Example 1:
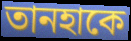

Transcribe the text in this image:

তানহাকে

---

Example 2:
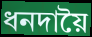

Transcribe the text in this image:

ধনদায়ৈ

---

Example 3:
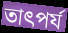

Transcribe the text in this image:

তাৎপর্য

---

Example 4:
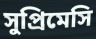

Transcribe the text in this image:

সুপ্রিমেসি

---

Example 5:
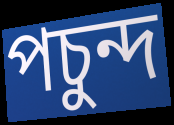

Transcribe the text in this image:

পচুন্দ